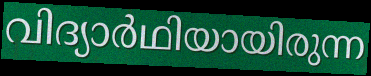
വിദ്യാർഥിയായിരുന്ന